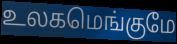
உலகமெங்குமே